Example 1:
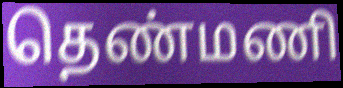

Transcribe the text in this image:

தெண்மணி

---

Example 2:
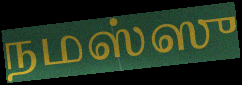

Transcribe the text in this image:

நமஸ்ஸு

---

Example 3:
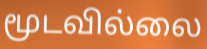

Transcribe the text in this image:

மூடவில்லை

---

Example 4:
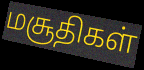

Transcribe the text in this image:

மசூதிகள்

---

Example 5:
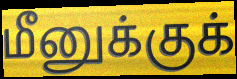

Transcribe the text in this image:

மீனுக்குக்